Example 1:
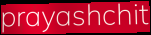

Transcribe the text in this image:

prayashchit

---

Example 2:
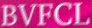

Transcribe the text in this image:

BVFCL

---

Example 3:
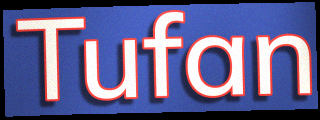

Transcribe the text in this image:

Tufan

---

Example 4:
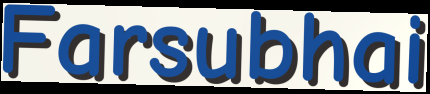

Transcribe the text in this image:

Farsubhai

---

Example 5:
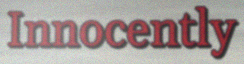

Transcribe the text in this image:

Innocently